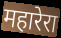
महारेरा